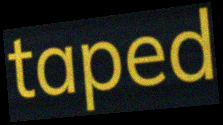
taped